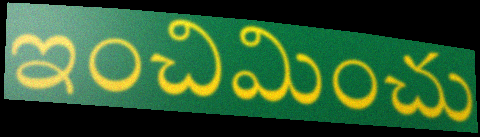
ఇంచిమించు